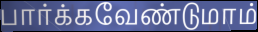
பார்க்கவேண்டுமாம்